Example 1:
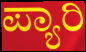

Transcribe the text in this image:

ಪ್ಯಾರಿ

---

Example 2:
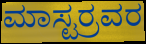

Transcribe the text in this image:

ಮಾಸ್ಟರ್ರವರ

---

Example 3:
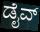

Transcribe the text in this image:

ಡೈವ್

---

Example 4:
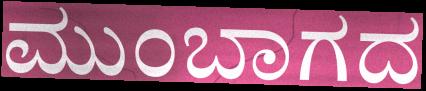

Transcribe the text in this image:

ಮುಂಬಾಗದ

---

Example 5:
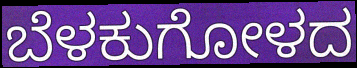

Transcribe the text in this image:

ಬೆಳಕುಗೋಳದ